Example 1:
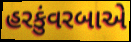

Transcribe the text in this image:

હરકુંવરબાએ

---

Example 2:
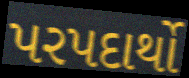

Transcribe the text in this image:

પરપદાર્થો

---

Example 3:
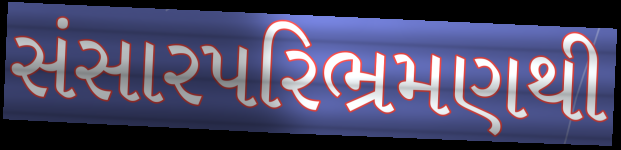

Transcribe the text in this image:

સંસારપરિભ્રમણથી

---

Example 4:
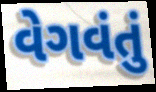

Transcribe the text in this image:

વેગવંતું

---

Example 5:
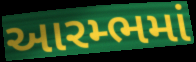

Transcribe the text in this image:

આરમ્ભમાં